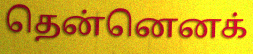
தென்னெனக்